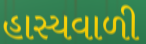
હાસ્યવાળી